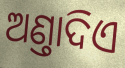
ଅଣ୍ତାଦିଏ